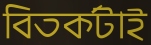
বিতর্কটাই